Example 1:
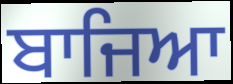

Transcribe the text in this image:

ਬਾਜਿਆ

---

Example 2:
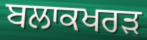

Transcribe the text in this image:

ਬਲਾਕਖਰੜ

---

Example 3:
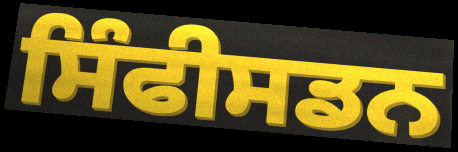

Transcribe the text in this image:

ਸਿੰਫੀਸਡਨ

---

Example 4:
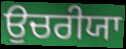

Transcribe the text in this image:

ਉਚਰੀਯਾ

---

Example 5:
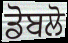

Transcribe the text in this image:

ਡੋਬਲੋ